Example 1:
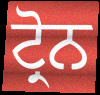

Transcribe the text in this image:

ਟ੍ਰੋਨ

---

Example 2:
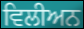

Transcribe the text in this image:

ਵਿਲੀਅਨ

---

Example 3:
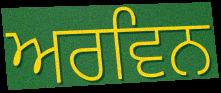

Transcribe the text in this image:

ਅਰਵਿਨ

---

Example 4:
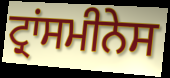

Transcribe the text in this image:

ਟ੍ਰਾਂਸਮੀਨੇਸ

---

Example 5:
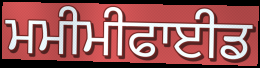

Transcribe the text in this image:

ਮਮੀਮੀਫਾਈਡ